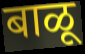
बाळू